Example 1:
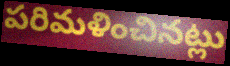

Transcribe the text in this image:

పరిమళించినట్లు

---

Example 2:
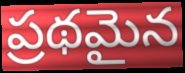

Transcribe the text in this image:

ప్రథమైన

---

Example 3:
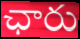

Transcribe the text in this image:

ఛారు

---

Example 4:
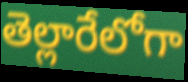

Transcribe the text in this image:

తెల్లారేలోగా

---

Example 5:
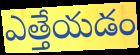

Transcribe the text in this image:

ఎత్తేయడం